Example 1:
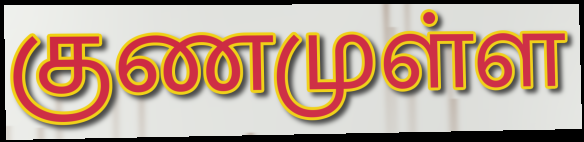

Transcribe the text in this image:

குணமுள்ள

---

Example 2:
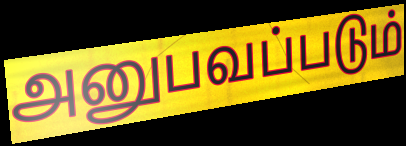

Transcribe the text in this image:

அனுபவப்படும்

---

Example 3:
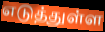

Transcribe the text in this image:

எடுத்துள்ள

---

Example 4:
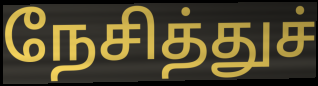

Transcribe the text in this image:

நேசித்துச்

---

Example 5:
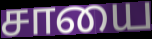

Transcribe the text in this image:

சாயை